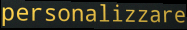
personalizzare